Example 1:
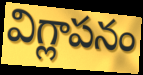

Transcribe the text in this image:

విగ్లాపనం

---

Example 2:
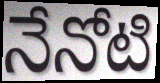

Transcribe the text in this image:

నేనోటి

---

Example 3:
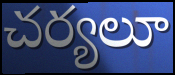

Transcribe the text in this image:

చర్యలూ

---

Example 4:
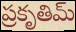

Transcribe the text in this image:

ప్రకృతిమ్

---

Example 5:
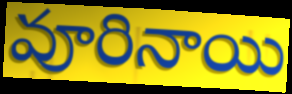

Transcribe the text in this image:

వూరినాయి